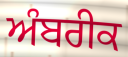
ਅੰਬਰੀਕ